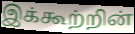
இக்கூற்றின்